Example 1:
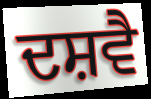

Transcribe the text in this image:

ਦਸ਼ਵੈ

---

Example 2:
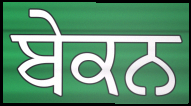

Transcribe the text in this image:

ਬੇਕਨ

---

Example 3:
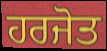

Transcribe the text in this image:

ਹਰਜੋਤ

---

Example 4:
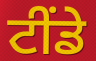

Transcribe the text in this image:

ਟੀਂਡੇ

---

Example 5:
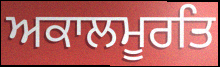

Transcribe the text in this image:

ਅਕਾਲਮੂਰਤਿ